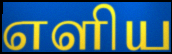
எளிய